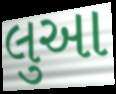
લુઆ